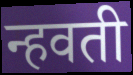
न्हवती